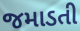
જમાડતી